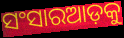
ସଂସାରଆଡ଼କୁ